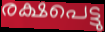
രക്ഷപെട്ടു